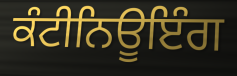
ਕੰਟੀਨਿਊਇੰਗ